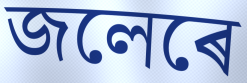
জলেৰে